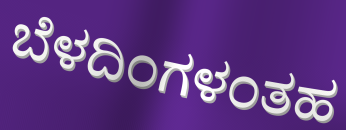
ಬೆಳದಿಂಗಳಂತಹ